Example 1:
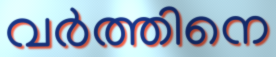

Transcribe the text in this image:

വർത്തിനെ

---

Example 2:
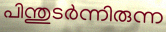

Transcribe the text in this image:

പിന്തുടർന്നിരുന്ന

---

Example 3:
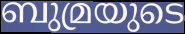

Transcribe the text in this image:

ബുമ്രയുടെ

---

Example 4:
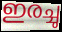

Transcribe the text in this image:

ഇരച്ചു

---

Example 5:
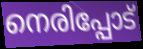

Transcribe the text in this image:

നെരിപ്പോട്